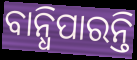
ବାନ୍ଧିପାରନ୍ତି